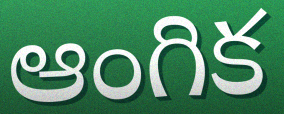
ఆంగిక